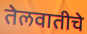
तेलवातीचे